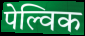
पेल्विक